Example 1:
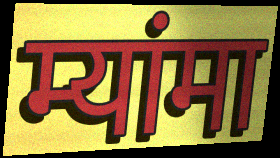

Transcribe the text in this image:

म्यांमा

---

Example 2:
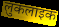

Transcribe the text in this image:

लुकलाइक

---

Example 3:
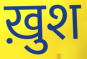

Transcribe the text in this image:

ख़ुश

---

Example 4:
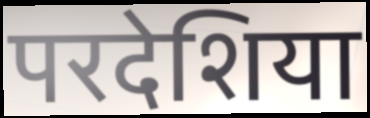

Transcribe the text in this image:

परदेशिया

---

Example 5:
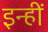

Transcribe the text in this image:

इन्‍हीं